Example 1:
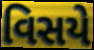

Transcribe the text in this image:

વિસયે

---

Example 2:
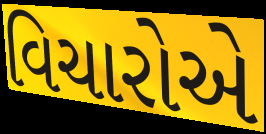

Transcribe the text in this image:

વિચારોએ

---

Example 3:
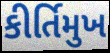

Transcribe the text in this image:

કીર્તિમુખ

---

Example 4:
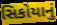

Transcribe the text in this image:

સિકોયાનું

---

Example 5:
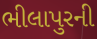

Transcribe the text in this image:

ભીલાપુરની